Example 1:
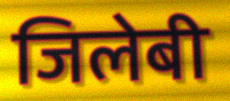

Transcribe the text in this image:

जिलेबी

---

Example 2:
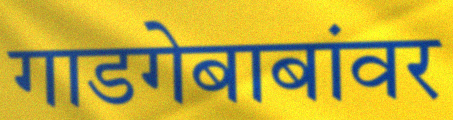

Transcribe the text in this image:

गाडगेबाबांवर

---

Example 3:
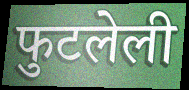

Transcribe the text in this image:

फुटलेली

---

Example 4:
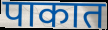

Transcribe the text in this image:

पाकात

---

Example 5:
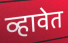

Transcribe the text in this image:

व्हावेत